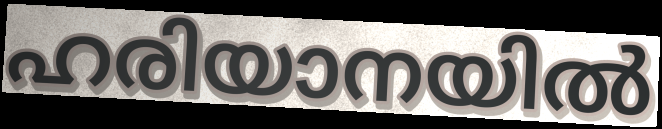
ഹരിയാനയിൽ